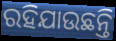
ରହିଯାଉଛନ୍ତି